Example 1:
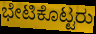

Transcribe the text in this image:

ಭೇಟಿಕೊಟ್ಟರು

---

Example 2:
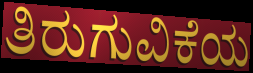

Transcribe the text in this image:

ತಿರುಗುವಿಕೆಯ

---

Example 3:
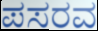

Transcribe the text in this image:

ಪಸರವ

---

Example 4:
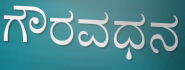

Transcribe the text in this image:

ಗೌರವಧನ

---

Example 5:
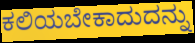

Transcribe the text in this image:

ಕಲಿಯಬೇಕಾದುದನ್ನು